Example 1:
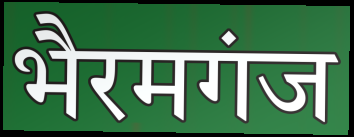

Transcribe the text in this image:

भैरमगंज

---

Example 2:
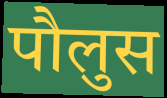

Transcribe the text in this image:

पौलुस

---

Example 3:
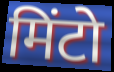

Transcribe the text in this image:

मिंटो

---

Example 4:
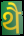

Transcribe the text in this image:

थै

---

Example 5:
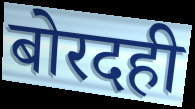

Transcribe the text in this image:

बोरदही